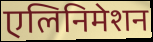
एलिनिमेशन